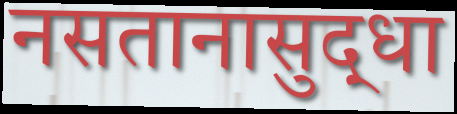
नसतानासुद्धा